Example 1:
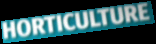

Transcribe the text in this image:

HORTICULTURE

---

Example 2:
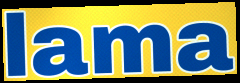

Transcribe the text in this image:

lama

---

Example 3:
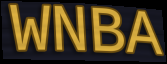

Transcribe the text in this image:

WNBA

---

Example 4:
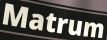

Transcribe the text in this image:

Matrum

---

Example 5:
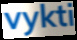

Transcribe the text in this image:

vykti